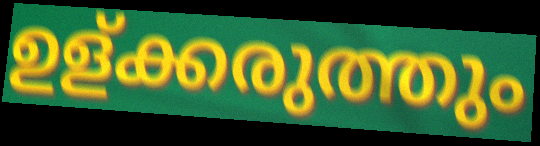
ഉള്ക്കരുത്തും